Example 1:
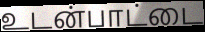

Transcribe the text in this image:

உடன்பாட்டை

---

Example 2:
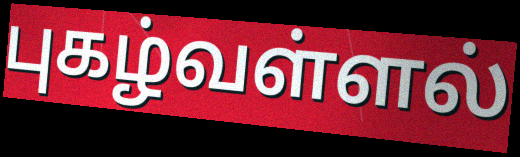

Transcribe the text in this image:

புகழ்வள்ளல்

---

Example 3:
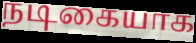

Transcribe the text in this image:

நடிகையாக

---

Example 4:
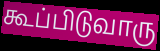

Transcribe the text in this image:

கூப்பிடுவாரு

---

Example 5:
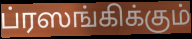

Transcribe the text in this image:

ப்ரஸங்கிக்கும்